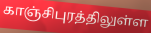
காஞ்சிபுரத்திலுள்ள